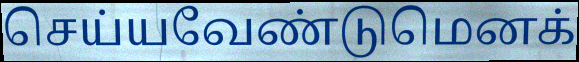
செய்யவேண்டுமெனக்